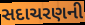
સદાચરણની